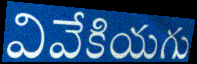
వివేకియగు